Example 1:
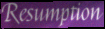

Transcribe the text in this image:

Resumption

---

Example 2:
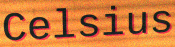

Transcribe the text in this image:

Celsius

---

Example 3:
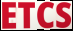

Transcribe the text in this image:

ETCS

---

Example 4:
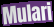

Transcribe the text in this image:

Mulari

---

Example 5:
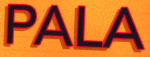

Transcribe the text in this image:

PALA